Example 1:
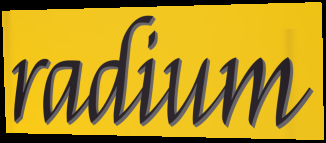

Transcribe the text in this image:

radium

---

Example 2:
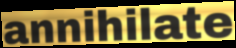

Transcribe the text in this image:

annihilate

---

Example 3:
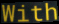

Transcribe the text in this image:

With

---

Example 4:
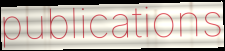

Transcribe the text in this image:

publications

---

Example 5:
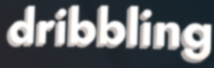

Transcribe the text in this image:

dribbling